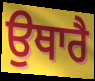
ਉਥਾਰੈ